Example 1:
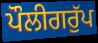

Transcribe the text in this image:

ਪੌਲੀਗਰੁੱਪ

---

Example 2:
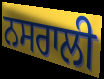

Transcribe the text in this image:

ਨਸਰਾਲੀ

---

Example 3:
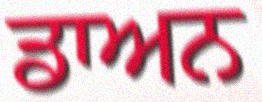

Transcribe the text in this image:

ਡਾਅਨ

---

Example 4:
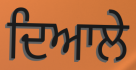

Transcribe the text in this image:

ਦਿਆਲੇ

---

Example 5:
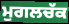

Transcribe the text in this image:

ਮੁਗਲਚੱਕ